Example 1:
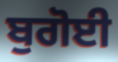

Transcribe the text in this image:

ਬੁਗੋਈ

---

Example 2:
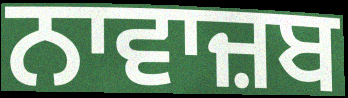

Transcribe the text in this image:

ਨਾਵਾਜ਼ਬ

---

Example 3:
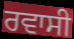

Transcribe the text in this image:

ਰਵਾਸੀ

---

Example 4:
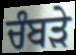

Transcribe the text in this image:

ਚੰਬੜੇ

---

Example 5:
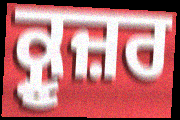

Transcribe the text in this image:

ਕ੍ਰੂਜ਼ਰ